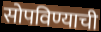
सोपविण्याची